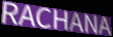
RACHANA